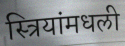
स्त्रियांमधली